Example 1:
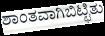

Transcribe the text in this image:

ಶಾಂತವಾಗಿಬಿಟ್ಟಿತು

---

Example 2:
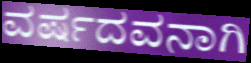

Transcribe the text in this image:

ವರ್ಷದವನಾಗಿ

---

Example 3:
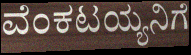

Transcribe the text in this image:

ವೆಂಕಟಯ್ಯನಿಗೆ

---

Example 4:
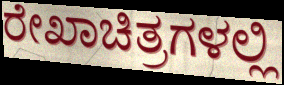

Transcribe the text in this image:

ರೇಖಾಚಿತ್ರಗಳಲ್ಲಿ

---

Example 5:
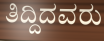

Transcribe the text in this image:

ತಿದ್ದಿದವರು